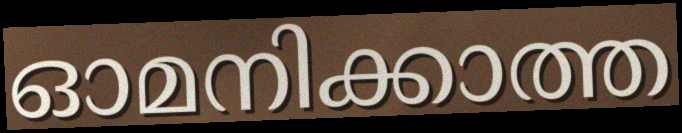
ഓമനിക്കാത്ത